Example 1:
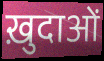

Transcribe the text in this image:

ख़ुदाओं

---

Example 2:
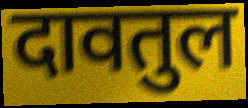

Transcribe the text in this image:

दावतुल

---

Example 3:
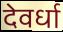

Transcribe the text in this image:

देवर्धा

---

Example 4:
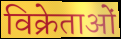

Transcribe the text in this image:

विक्रेताओं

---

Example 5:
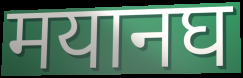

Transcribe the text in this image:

मयानघ